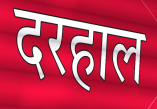
दरहाल